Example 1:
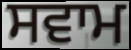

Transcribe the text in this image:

ਸਵਾਮ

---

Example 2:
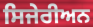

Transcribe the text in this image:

ਸਿਜੇਰੀਅਨ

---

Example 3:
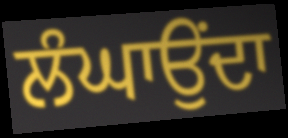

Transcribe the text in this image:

ਲੰਘਾਉਂਦਾ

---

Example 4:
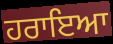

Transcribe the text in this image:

ਹਰਾਇਆ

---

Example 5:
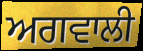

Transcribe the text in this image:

ਅਗਵਾਲੀ